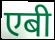
एबी